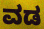
ವಡ